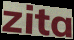
zita